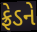
ફ્રેડને